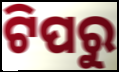
ଟିପରୁ